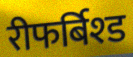
रीफर्बिश्ड